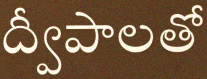
ద్వీపాలతో